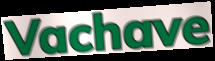
Vachave